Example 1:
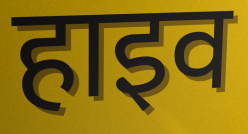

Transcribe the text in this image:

हाइव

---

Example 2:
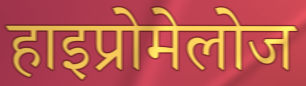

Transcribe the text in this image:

हाइप्रोमेलोज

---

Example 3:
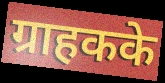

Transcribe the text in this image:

ग्राहकके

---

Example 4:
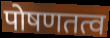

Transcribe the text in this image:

पोषणतत्व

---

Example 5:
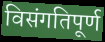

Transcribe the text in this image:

विसंगतिपूर्ण